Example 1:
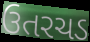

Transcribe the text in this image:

ઉતરચડ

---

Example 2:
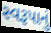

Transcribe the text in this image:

સ્વરૂપાનું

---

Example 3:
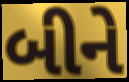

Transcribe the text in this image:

બીને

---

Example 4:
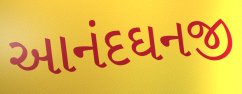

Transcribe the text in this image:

આનંદઘનજી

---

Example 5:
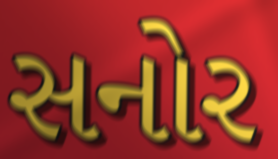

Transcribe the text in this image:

સનોર